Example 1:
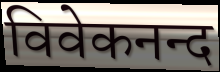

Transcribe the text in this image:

विवेकनन्द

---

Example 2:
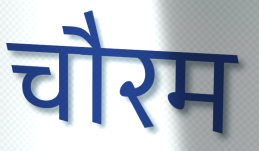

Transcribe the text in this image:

चौरम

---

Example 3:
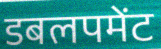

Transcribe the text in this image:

डबलपमेंट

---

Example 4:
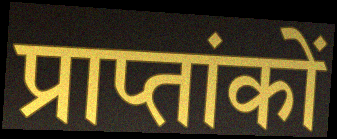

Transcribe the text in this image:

प्राप्तांकों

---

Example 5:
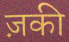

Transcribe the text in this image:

ज़की